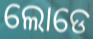
ଲୋଡେ